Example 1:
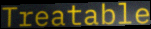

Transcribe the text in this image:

Treatable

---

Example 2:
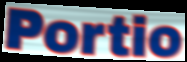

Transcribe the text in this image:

Portio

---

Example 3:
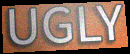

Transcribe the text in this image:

UGLY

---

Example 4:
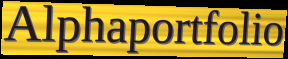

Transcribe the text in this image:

Alphaportfolio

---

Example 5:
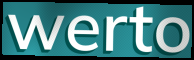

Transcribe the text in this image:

werto